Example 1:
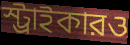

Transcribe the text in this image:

স্ট্রাইকারও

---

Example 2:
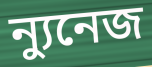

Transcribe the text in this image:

ন্যুনেজ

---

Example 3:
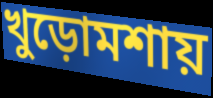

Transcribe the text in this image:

খুড়োমশায়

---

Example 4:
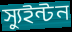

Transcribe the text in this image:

স্যুইন্টন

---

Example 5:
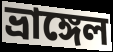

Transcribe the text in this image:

ভ্রাঙ্গেল